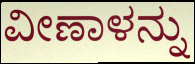
ವೀಣಾಳನ್ನು